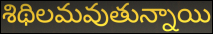
శిథిలమవుతున్నాయి